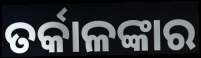
ତର୍କାଳଙ୍କାର